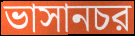
ভাসানচর